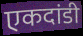
एकदांडी